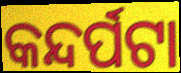
କନ୍ଦର୍ପଟା